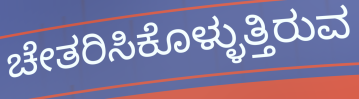
ಚೇತರಿಸಿಕೊಳ್ಳುತ್ತಿರುವ